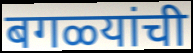
बगळ्यांची